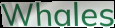
Whales